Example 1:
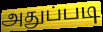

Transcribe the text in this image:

அதுப்படி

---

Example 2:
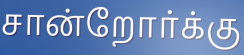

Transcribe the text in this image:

சான்றோர்க்கு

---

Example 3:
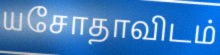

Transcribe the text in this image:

யசோதாவிடம்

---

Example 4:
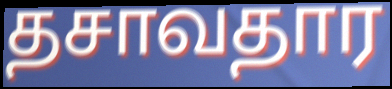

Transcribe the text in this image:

தசாவதார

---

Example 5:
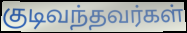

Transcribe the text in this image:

குடிவந்தவர்கள்